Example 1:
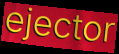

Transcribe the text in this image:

ejector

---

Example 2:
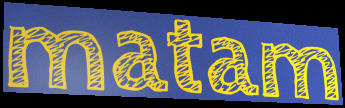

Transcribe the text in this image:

matam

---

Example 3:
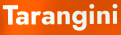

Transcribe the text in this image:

Tarangini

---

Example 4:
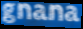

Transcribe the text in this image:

gnana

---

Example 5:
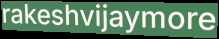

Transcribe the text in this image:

rakeshvijaymore